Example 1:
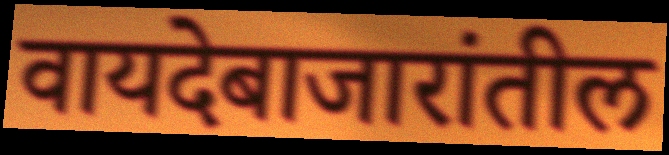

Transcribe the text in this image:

वायदेबाजारांतील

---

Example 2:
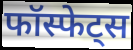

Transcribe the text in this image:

फॉस्फेट्स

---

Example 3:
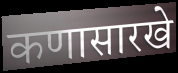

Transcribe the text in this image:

कणासारखे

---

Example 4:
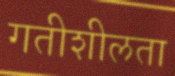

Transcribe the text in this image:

गतीशीलता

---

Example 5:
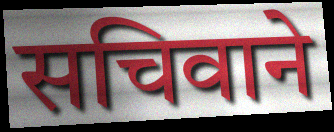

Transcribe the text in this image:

सचिवाने